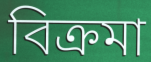
বিক্রমা